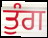
ਤੁੰਗ